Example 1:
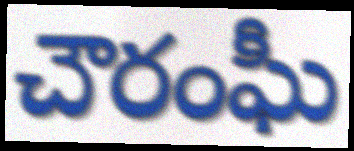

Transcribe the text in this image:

చౌరంఘీ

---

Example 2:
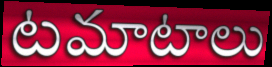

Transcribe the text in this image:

టమాటాలు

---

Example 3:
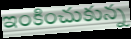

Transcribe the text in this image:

ఇంకించుకున్న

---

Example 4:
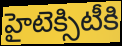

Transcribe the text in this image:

హైటెక్సిటీకి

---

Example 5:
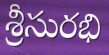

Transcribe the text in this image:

శ్రీసురభి